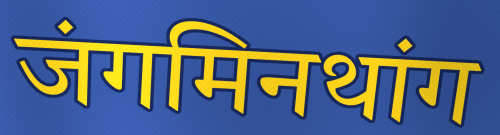
जंगमिनथांग